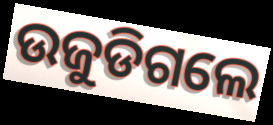
ଉଜୁଡିଗଲେ